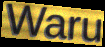
Waru